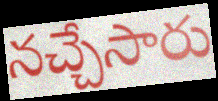
నచ్చేసారు